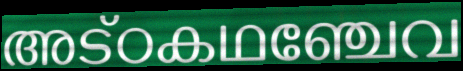
അട്ഠകഥഞ്ചേവ